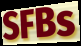
SFBs